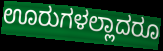
ಊರುಗಳಲ್ಲಾದರೂ